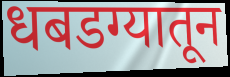
धबडग्यातून